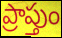
ప్రాప్తుం